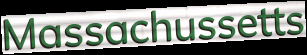
Massachussetts